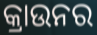
କ୍ରାଉନର